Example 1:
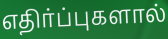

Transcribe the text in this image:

எதிர்ப்புகளால்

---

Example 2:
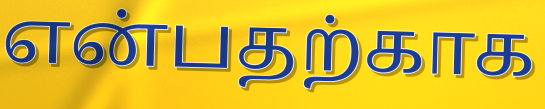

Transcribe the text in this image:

என்பதற்காக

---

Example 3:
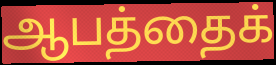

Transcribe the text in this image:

ஆபத்தைக்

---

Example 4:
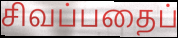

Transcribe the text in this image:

சிவப்பதைப்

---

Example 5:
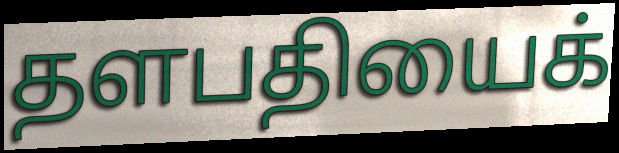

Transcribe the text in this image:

தளபதியைக்